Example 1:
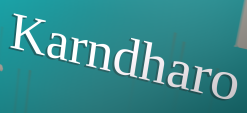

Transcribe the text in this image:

Karndharo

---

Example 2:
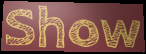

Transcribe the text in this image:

Show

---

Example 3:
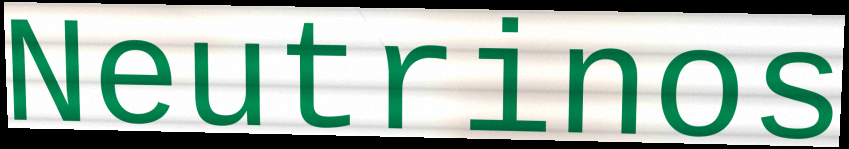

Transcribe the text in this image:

Neutrinos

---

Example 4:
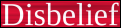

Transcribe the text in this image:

Disbelief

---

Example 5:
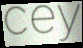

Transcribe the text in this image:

cey